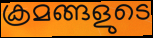
ക്രമങ്ങളുടെ